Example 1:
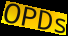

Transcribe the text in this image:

OPDs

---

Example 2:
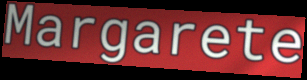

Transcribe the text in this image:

Margarete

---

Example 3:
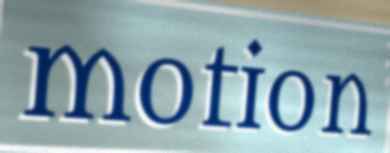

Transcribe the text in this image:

motion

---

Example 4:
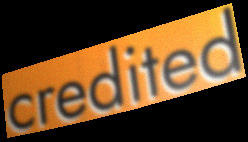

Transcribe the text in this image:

credited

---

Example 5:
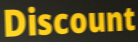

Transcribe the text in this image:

Discount